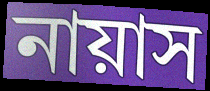
নায়াস